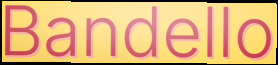
Bandello